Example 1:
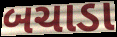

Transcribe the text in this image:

બચાડા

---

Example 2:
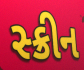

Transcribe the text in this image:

સ્ક્રીન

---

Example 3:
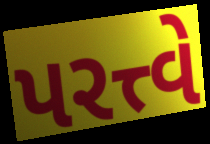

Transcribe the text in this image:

પરત્ત્વે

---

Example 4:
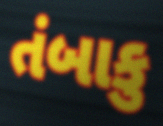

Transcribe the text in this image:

તંબાકુ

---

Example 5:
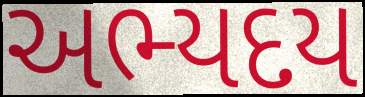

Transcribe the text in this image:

અભ્યદય